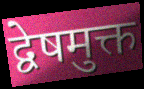
द्वेषमुक्त